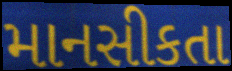
માનસીકતા